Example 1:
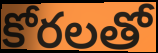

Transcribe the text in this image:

కోరలతో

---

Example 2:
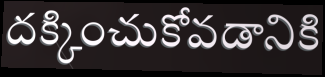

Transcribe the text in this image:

దక్కించుకోవడానికి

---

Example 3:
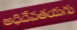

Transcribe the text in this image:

అధిదేవతయగు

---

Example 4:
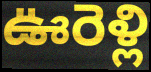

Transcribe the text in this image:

ఊరెళ్లి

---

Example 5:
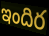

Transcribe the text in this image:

ఇందిర